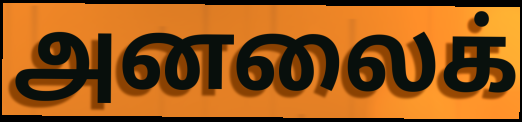
அனலைக்